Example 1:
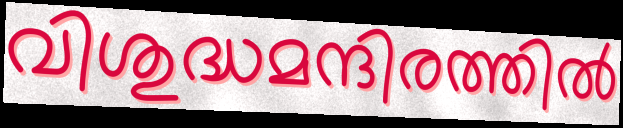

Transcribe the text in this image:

വിശുദ്ധമന്ദിരത്തിൽ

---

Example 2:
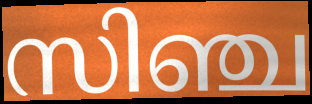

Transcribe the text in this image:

സിഞ്ച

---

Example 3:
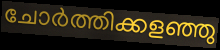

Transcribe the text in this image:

ചോർത്തിക്കളഞ്ഞു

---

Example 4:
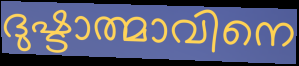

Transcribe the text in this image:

ദുഷ്ടാത്മാവിനെ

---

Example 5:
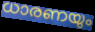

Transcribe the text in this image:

ധാരണയും